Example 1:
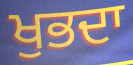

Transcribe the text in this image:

ਖੁਭਦਾ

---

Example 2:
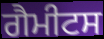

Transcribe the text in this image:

ਗੈਮੀਟਸ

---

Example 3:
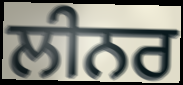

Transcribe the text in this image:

ਲੀਨਰ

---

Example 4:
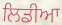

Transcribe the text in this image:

ਲਿਡੀਆ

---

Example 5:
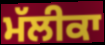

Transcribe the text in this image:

ਮੱਲੀਕਾ